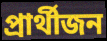
প্ৰাৰ্থীজন